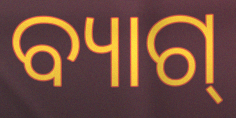
ବ୍ୟାଗ୍